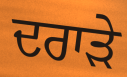
ਦਰਾੜੇ